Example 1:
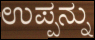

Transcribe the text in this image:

ಉಪ್ಪನ್ನು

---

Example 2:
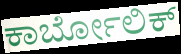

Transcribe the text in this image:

ಕಾರ್ಬೋಲಿಕ್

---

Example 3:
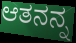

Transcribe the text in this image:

ಆತನನ್ನ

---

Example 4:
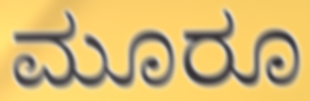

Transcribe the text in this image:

ಮೂರೂ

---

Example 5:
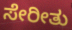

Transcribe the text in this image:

ಸೇರೀತು